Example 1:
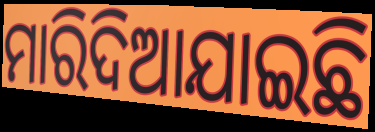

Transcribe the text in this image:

ମାରିଦିଆଯାଇଛି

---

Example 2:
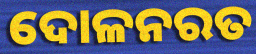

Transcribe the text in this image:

ଦୋଳନରତ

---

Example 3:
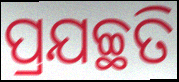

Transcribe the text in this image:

ପ୍ରଯଚ୍ଛତି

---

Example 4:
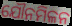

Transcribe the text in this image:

ଯୌନମିଳନ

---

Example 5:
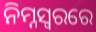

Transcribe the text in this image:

ନିମ୍ନସ୍ଵରରେ